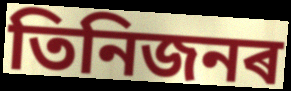
তিনিজনৰ